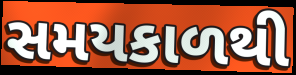
સમયકાળથી